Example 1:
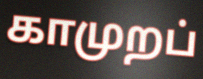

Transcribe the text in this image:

காமுறப்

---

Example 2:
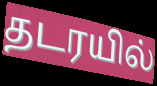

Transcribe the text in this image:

தடரயில்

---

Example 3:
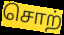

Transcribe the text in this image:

சொற்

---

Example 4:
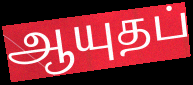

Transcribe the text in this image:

ஆயுதப்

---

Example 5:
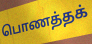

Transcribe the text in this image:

பொணத்தக்